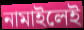
নামাইলেই